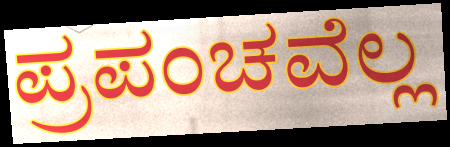
ಪ್ರಪಂಚವೆಲ್ಲ